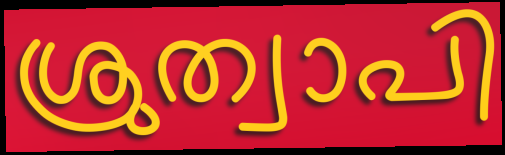
ശ്രുത്വാപി